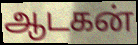
ஆடகன்